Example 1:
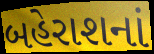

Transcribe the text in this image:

બહેરાશનાં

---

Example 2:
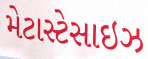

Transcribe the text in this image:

મેટાસ્ટેસાઇઝ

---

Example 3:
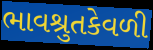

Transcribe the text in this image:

ભાવશ્રુતકેવળી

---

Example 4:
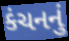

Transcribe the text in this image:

કંચનનું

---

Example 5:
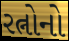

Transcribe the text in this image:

રત્નોનો